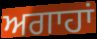
ਅਗਾਹਾਂ